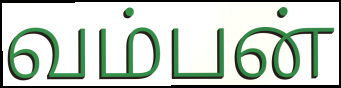
வம்பன்